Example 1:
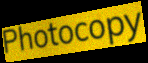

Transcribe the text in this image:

Photocopy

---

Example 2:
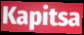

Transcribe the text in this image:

Kapitsa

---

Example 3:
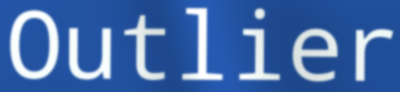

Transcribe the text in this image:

Outlier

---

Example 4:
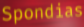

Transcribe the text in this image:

Spondias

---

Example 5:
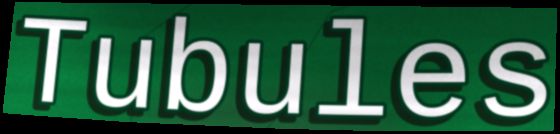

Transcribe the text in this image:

Tubules